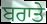
ਬਰਾਤੇ